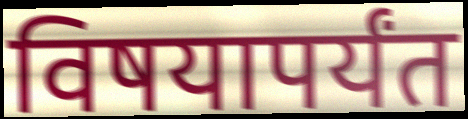
विषयापर्यंत